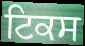
ਟਿਕਸ